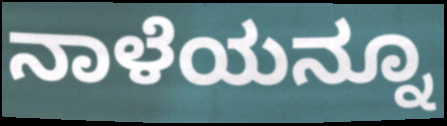
ನಾಳೆಯನ್ನೂ